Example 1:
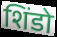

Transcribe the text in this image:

शिंडो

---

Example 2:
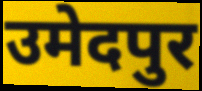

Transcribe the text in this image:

उमेदपुर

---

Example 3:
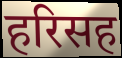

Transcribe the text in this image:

हरिसह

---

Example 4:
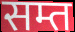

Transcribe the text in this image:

सम्त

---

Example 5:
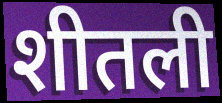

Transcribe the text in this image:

शीतली